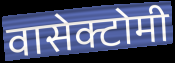
वासेक्टोमी